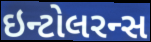
ઇન્ટોલરન્સ